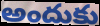
అందుకు